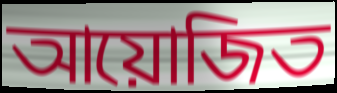
আয়োজিত